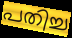
പതിച്ച